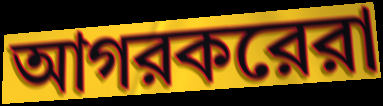
আগরকরেরা